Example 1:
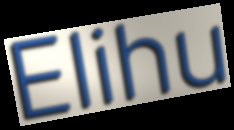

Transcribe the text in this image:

Elihu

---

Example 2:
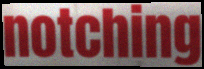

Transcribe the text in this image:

notching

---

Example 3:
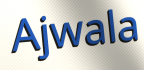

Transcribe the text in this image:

Ajwala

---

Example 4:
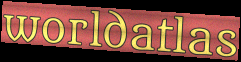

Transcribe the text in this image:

worldatlas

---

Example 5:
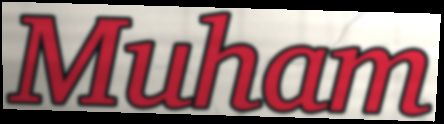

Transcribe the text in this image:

Muham